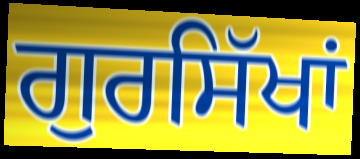
ਗੁਰਸਿੱਖਾਂ